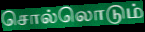
சொல்லொடும்